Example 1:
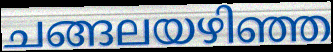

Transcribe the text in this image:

ചങ്ങലയഴിഞ്ഞ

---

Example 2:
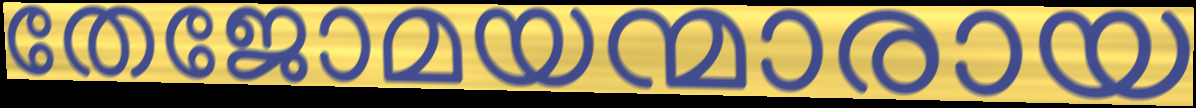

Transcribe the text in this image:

തേജോമയന്മാരായ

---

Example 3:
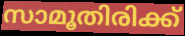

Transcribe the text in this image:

സാമൂതിരിക്ക്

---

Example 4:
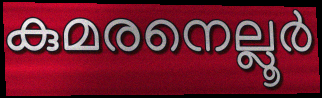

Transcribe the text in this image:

കുമരനെല്ലൂർ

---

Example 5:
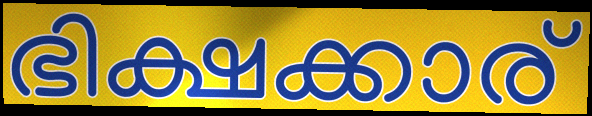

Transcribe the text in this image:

ഭിക്ഷക്കാര്